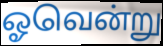
ஓவென்று